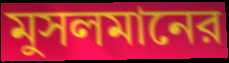
মুসলমানের